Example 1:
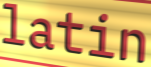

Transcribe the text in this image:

latin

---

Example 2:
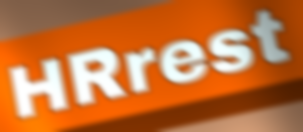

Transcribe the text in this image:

HRrest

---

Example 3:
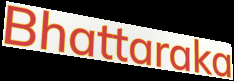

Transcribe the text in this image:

Bhattaraka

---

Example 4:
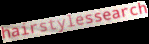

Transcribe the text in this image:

hairstylessearch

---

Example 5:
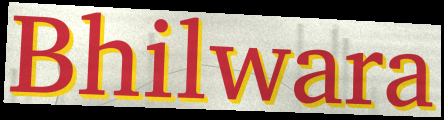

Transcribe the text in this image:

Bhilwara